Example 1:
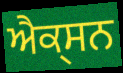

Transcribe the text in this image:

ਐਕ੍ਸਨ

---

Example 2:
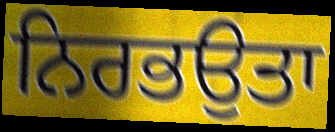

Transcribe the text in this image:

ਨਿਰਭਉਤਾ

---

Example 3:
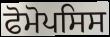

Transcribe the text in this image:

ਫੋਮੋਪਸਿਸ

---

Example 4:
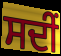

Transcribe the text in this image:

ਸਦੀਂ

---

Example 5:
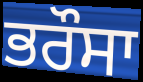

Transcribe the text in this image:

ਭਰੌਸਾ